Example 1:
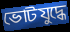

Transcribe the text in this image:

ভোটযুদ্ধে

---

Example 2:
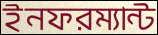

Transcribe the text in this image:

ইনফরম্যান্ট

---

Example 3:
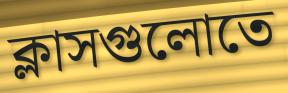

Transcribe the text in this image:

ক্লাসগুলোতে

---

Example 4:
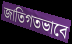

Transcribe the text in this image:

জাতিগতভাবে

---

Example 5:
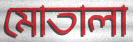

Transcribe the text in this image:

মোতালা